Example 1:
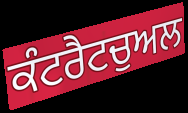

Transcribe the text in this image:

ਕੰਟਰੈਟਚੁਅਲ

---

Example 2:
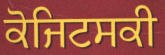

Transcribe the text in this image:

ਕੋਜਿਟਸਕੀ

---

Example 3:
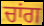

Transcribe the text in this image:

ਚਾਂਗ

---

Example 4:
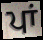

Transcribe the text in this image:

ਪਾਂ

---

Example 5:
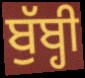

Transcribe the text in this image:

ਬੁੱਬ੍ਹੀ